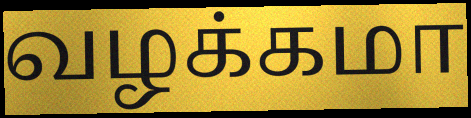
வழக்கமா